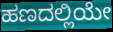
ಹಣದಲ್ಲಿಯೇ